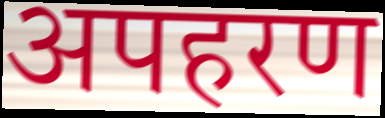
अपहरण